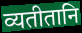
व्यतीतानि